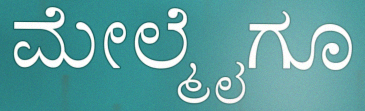
ಮೇಲ್ಮೈಗೂ